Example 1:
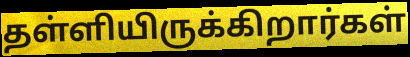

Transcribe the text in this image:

தள்ளியிருக்கிறார்கள்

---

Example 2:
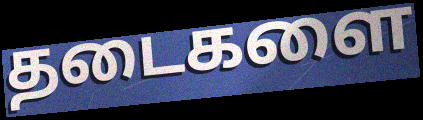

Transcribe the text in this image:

தடைகளை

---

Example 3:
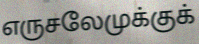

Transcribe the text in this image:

எருசலேமுக்குக்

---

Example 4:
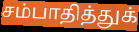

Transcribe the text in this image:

சம்பாதித்துக்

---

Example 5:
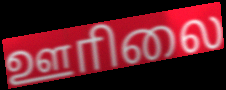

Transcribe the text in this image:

ஊரிலை